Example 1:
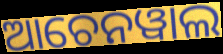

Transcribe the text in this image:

ଆଚେନୱାଲ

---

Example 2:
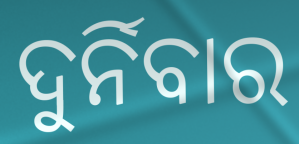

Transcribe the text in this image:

ଦୁର୍ନିବାର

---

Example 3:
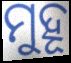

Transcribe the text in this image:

ମୁହୂ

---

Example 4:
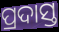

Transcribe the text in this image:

ପ୍ରଦାସ୍ତ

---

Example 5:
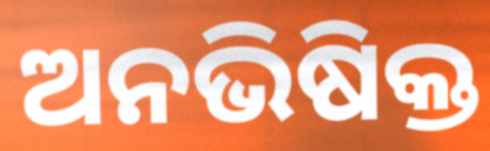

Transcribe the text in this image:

ଅନଭିଷିକ୍ତ